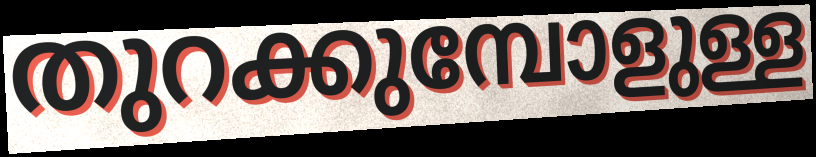
തുറക്കുമ്പോളുള്ള